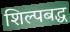
शिल्पबद्ध